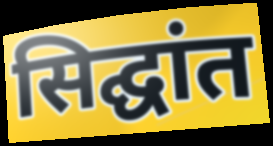
सिद्घांत